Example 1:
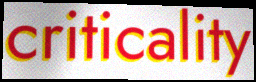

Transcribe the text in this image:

criticality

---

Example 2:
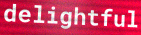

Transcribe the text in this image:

delightful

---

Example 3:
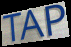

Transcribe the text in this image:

TAP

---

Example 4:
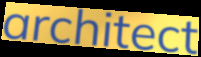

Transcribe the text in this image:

architect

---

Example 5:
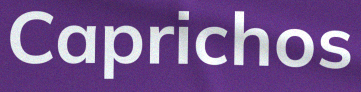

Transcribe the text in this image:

Caprichos